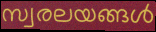
സ്വരലയങ്ങൾ